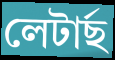
লেটাৰ্ছ